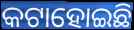
କଟାହୋଇଛି